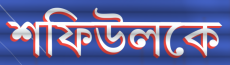
শফিউলকে